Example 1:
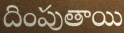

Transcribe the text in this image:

దింపుతాయి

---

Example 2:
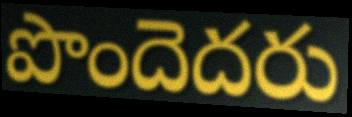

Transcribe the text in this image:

పొందెదరు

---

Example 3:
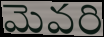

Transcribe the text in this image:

మెవరి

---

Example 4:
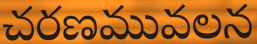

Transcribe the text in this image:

చరణమువలన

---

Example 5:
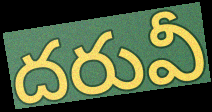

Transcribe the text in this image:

దరువీ